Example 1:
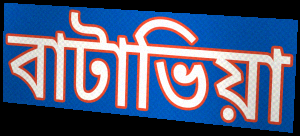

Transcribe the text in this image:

বাটাভিয়া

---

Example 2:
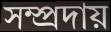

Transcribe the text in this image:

সম্প্রদায়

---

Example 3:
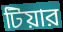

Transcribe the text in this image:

টিয়ার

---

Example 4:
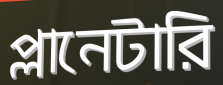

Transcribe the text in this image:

প্লানেটারি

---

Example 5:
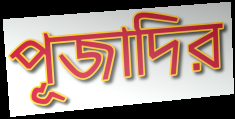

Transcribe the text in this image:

পূজাদির